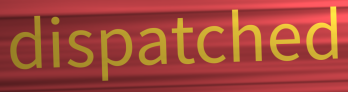
dispatched